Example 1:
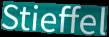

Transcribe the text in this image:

Stieffel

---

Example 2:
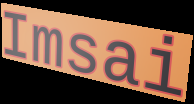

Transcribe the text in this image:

Imsai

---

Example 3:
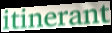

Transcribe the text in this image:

itinerant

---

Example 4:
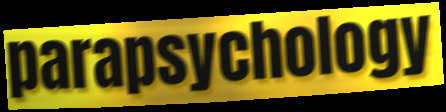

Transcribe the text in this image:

parapsychology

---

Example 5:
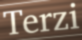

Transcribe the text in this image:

Terzi